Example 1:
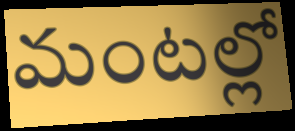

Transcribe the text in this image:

మంటల్లో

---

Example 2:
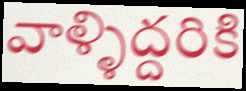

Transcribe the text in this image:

వాళ్ళిద్దరికి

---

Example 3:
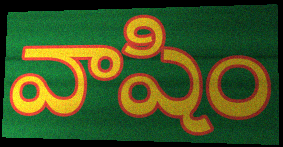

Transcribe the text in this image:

వాషిం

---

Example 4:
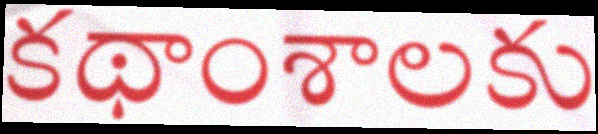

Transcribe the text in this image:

కథాంశాలకు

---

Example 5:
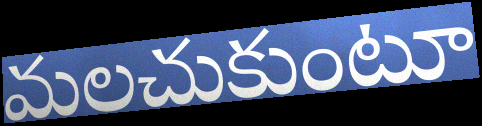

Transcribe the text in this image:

మలచుకుంటూ